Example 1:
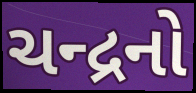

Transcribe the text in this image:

ચન્દ્રનો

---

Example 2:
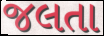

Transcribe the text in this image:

જલતા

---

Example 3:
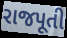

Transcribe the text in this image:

રાજપૂતી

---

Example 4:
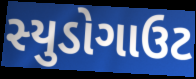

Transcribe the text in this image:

સ્યુડોગાઉટ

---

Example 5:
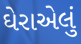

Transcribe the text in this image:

ઘેરાએલું